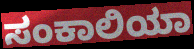
ಸಂಕಾಲಿಯಾ